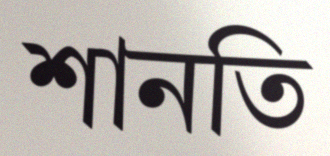
শানতি